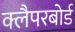
क्लैपरबोर्ड